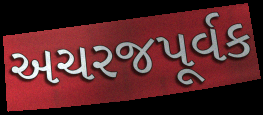
અચરજપૂર્વક